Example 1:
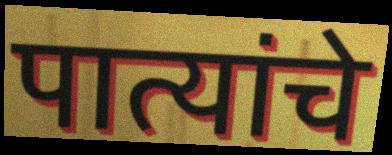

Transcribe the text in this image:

पात्यांचे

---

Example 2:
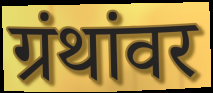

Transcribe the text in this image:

ग्रंथांवर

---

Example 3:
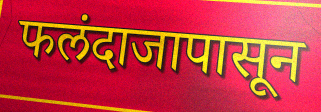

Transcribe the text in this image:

फलंदाजापासून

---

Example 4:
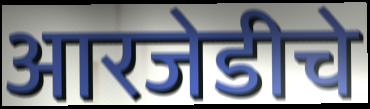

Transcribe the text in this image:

आरजेडीचे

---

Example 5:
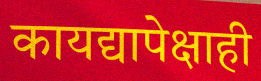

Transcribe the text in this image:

कायद्यापेक्षाही